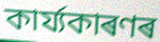
কাৰ্য্যকাৰণৰ